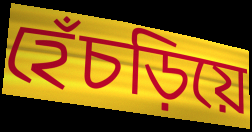
হেঁচড়িয়ে